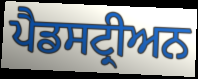
ਪੈਡਸਟ੍ਰੀਅਨ